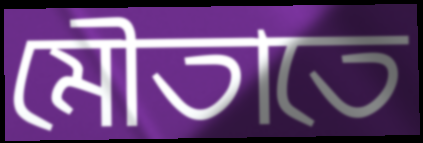
মৌতাতে